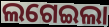
ଲଗେଇଲା